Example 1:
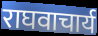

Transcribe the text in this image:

राघवाचार्य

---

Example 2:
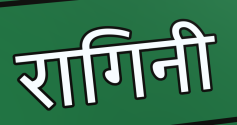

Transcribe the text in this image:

रागिनी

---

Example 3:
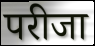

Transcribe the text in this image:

परीजा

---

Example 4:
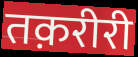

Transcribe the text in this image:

तक़रीरी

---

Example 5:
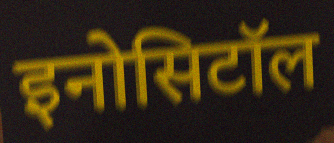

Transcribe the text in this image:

इनोसिटॉल